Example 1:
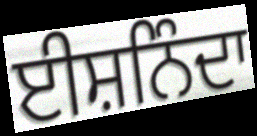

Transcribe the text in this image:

ਈਸ਼ਨਿੰਦਾ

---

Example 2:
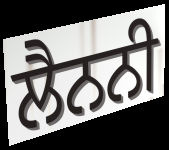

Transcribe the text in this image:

ਲੈਨਨੀ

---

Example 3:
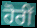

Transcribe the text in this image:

ਹੋਰੀਂ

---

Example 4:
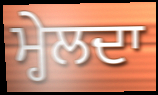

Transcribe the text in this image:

ਮ੍ਹੇਲਦਾ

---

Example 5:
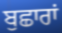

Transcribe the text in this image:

ਬੁਛਾਰਾਂ